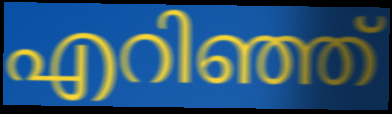
എറിഞ്ഞ്